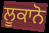
ਲੂਕਾਨੋ